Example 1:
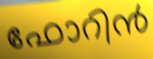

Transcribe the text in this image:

ഫോറിൻ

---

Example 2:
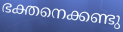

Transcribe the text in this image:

ഭക്തനെക്കണ്ടു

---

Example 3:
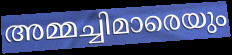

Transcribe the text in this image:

അമ്മച്ചിമാരെയും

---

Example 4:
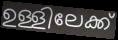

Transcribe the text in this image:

ഉള്ളിലേക്ക്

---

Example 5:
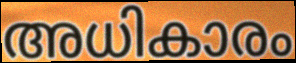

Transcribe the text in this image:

അധികാരം